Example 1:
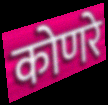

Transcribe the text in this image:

कोणरे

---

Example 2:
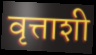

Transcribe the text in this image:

वृत्ताशी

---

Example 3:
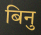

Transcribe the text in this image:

बिनु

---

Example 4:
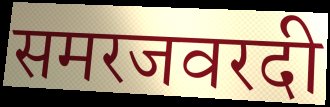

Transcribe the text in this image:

समरजवरदी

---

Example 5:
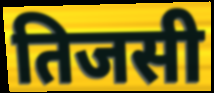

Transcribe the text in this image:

तिजसी